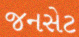
જનસેટ